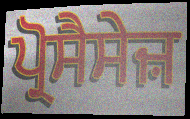
ਪ੍ਰੋਸੈਸੇਜ਼